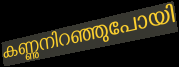
കണ്ണുനിറഞ്ഞുപോയി